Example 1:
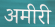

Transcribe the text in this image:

अमीरी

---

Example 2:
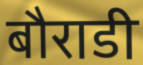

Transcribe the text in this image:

बौराडी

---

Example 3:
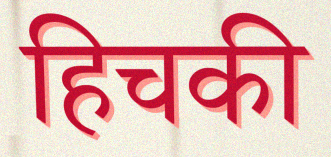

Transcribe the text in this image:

हिचकी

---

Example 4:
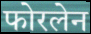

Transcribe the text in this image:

फोरलेन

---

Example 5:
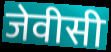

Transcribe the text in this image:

जेवीसी